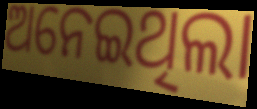
ଅନେଇଥିଲା